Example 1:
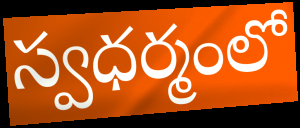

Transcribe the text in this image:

స్వధర్మంలో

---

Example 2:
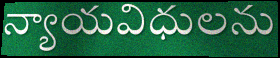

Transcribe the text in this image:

న్యాయవిధులను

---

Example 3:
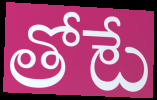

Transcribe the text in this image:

తోటే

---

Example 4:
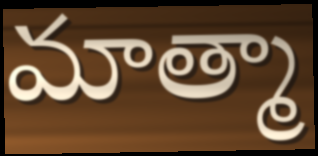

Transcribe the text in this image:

మాత్మా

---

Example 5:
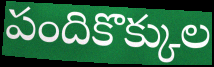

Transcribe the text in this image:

పందికొక్కుల